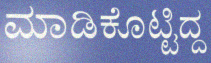
ಮಾಡಿಕೊಟ್ಟಿದ್ದ